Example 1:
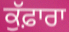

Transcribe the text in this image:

ਕੁੱਫ਼ਾਰਾ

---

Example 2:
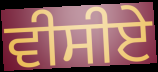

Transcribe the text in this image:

ਵੀਸੀਏ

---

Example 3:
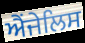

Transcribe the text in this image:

ਐਂਜੇਲਿਸ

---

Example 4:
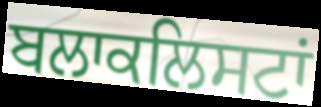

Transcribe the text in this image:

ਬਲਾਕਲਿਸਟਾਂ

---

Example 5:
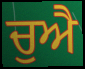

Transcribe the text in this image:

ਚੁਐ